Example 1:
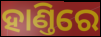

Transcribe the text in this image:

ହାଣ୍ତିରେ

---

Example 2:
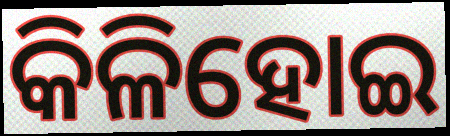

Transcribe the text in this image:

କିଳିହୋଇ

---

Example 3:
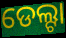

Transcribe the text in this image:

ଡେଲ୍ଟା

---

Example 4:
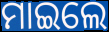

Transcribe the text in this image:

ମାଇଲେ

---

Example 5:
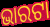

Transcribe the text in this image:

ଭାରଟା